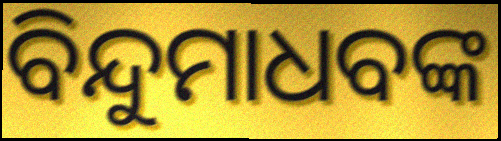
ବିନ୍ଦୁମାଧବଙ୍କ